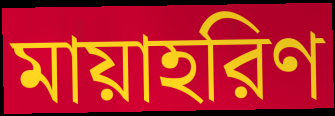
মায়াহরিণ